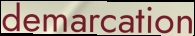
demarcation